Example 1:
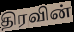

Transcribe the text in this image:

திரவின்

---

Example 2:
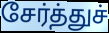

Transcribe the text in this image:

சேர்த்துச்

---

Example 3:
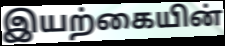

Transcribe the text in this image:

இயற்கையின்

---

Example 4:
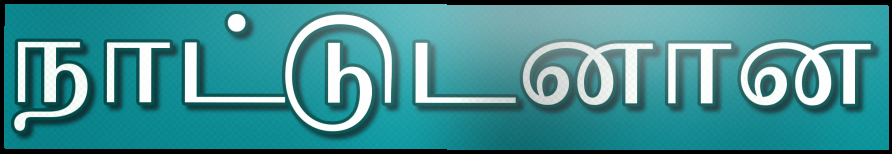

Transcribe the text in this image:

நாட்டுடனான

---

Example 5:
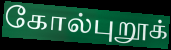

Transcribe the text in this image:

கோல்புறூக்